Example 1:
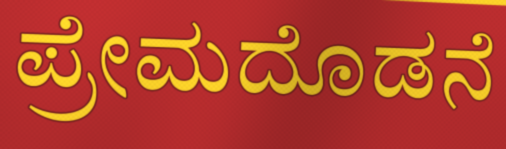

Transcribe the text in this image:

ಪ್ರೇಮದೊಡನೆ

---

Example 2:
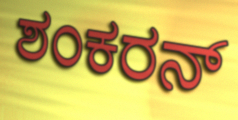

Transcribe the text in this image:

ಶಂಕರನ್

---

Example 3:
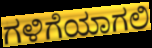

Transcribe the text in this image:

ಗಳಿಗೆಯಾಗಲಿ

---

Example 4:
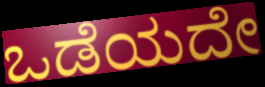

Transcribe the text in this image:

ಒಡೆಯದೇ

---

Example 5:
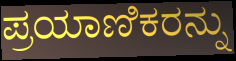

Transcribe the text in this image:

ಪ್ರಯಾಣಿಕರನ್ನು